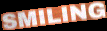
SMILING